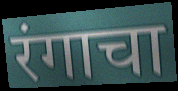
रंगाचा